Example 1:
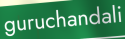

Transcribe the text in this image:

guruchandali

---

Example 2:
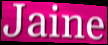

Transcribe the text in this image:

Jaine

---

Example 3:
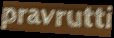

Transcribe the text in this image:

pravrutti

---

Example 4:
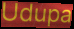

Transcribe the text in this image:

Udupa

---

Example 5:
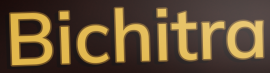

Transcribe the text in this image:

Bichitra